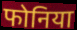
फोनिया